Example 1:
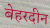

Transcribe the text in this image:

बेहरदीन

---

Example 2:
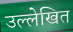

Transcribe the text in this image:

उल्‍लेखित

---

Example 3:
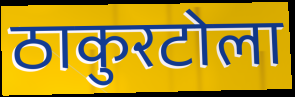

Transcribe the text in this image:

ठाकुरटोला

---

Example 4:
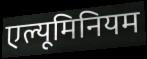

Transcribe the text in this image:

एल्यूमिनियम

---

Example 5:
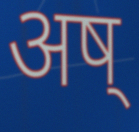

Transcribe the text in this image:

अष्